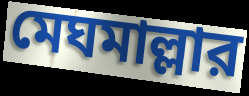
মেঘমাল্লার